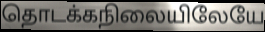
தொடக்கநிலையிலேயே